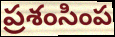
ప్రశంసింప